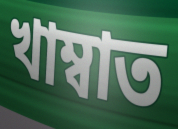
খাম্বাত